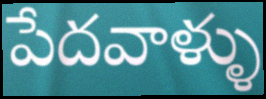
పేదవాళ్ళు